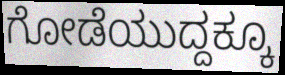
ಗೋಡೆಯುದ್ದಕ್ಕೂ